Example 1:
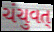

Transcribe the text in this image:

ચંચુવત્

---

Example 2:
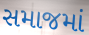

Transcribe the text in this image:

સમાજમાં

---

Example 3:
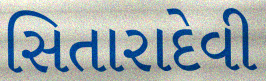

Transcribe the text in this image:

સિતારાદેવી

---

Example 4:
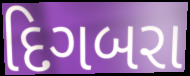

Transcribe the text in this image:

દિગબરા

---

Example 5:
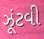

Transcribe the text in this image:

ઝૂંટવી